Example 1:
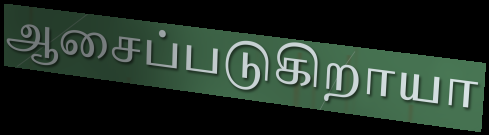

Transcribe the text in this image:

ஆசைப்படுகிறாயா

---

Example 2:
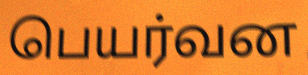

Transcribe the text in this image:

பெயர்வன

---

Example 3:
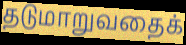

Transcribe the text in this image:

தடுமாறுவதைக்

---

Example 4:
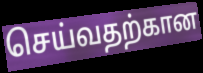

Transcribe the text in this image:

செய்வதற்கான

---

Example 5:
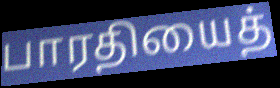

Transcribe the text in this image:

பாரதியைத்